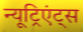
न्यूट्रिएंट्स